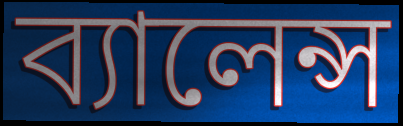
ব্যালেন্স